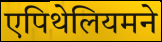
एपिथेलियमने